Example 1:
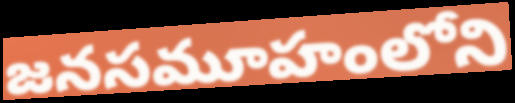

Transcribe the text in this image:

జనసమూహంలోని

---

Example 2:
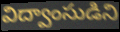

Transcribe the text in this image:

విద్వాంసుడిని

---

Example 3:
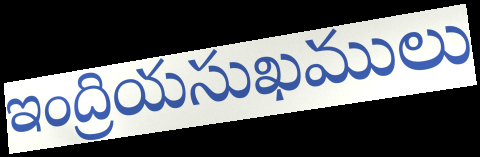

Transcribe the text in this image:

ఇంద్రియసుఖములు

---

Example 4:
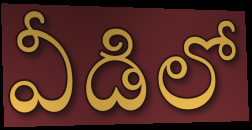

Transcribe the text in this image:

వీడిలో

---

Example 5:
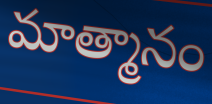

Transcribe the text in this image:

మాత్మానం